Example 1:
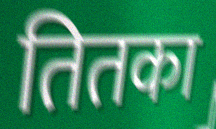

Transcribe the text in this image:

तितका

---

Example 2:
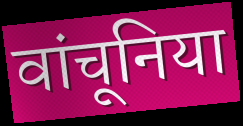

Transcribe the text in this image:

वांचूनिया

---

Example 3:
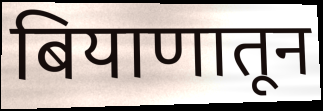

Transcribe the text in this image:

बियाणातून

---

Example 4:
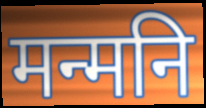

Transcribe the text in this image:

मन्मनि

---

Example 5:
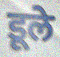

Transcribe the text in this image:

डूले